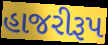
હાજરીરૂપ